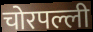
चोरपल्ली